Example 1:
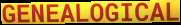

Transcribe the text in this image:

GENEALOGICAL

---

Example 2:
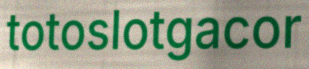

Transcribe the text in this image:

totoslotgacor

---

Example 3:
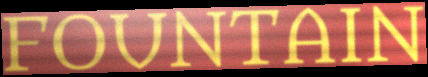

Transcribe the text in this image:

FOUNTAIN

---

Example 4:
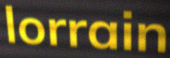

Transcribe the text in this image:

lorrain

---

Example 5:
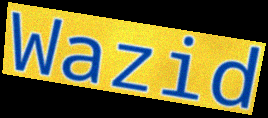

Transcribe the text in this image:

Wazid